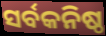
ସର୍ବକନିଷ୍ଠ